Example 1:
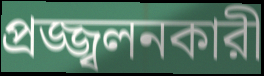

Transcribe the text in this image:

প্রজ্জ্বলনকারী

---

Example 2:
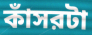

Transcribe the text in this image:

কাঁসরটা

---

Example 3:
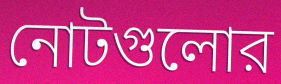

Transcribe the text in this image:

নোটগুলোর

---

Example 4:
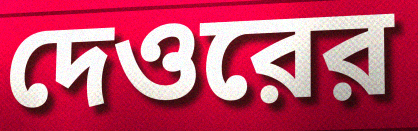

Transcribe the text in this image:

দেওরের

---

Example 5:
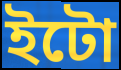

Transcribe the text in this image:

ইটো